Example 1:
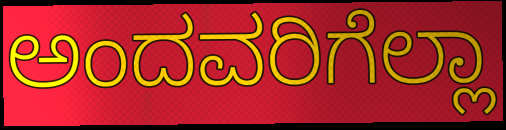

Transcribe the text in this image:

ಅಂದವರಿಗೆಲ್ಲಾ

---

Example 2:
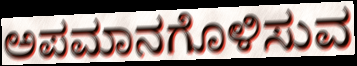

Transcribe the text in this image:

ಅಪಮಾನಗೊಳಿಸುವ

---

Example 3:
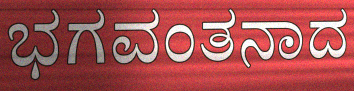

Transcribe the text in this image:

ಭಗವಂತನಾದ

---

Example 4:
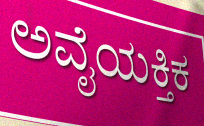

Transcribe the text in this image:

ಅವೈಯಕ್ತಿಕ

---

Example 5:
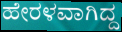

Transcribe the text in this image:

ಹೇರಳವಾಗಿದ್ದ